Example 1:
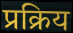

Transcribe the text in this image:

प्रक्रिय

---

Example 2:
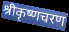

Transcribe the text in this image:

श्रीकृष्णचरण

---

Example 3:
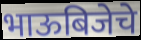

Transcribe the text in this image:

भाऊबिजेचे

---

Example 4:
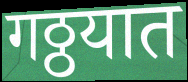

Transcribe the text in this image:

गठ्ठयात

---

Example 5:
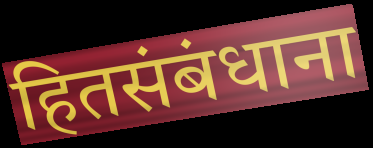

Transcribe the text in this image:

हितसंबंधाना